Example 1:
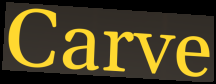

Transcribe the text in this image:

Carve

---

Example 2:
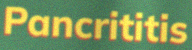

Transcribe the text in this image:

Pancrititis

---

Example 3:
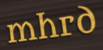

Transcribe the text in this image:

mhrd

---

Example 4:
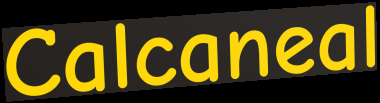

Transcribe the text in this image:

Calcaneal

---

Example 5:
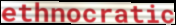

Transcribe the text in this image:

ethnocratic